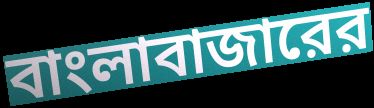
বাংলাবাজারের